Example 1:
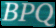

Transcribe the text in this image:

BPQ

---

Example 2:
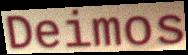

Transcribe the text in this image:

Deimos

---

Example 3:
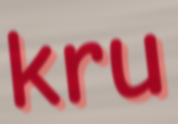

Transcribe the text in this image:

kru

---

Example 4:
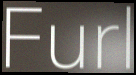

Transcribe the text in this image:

Furl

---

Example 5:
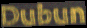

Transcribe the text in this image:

Dubun